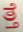
ತ್ತೆ